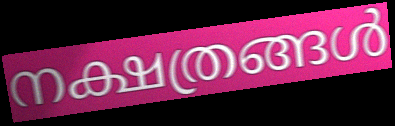
നക്ഷത്രങ്ങൾ